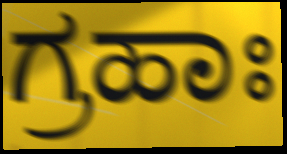
ಗ್ರಹಾಃ